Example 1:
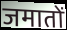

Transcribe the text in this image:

जमातों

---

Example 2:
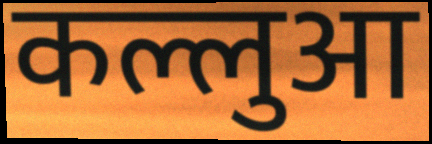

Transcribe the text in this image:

कल्लुआ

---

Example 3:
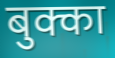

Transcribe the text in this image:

बुक्का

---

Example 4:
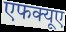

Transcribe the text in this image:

एफक्यूए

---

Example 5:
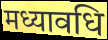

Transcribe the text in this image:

मध्‍यावधि